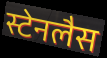
स्टेनलैस